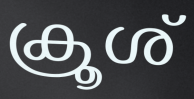
ക്രൂശ്